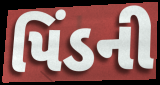
પિંડની